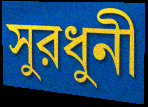
সুরধুনী